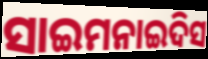
ସାଇମନାଇଦିସ